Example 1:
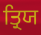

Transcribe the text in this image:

ਤ੍ਰਿਯ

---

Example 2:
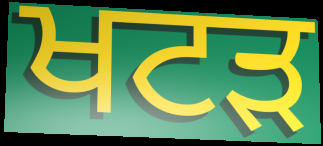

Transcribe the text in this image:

ਖਟੜ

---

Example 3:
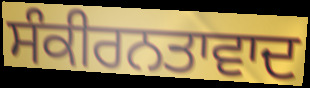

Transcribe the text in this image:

ਸੰਕੀਰਨਤਾਵਾਦ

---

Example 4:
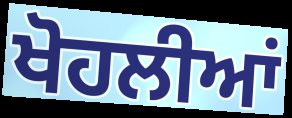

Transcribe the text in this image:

ਖੋਹਲੀਆਂ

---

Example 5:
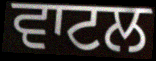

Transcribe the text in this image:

ਵਾਟਲ